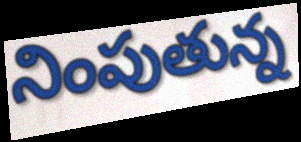
నింపుతున్న